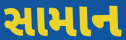
સામાન